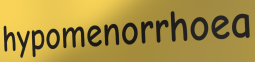
hypomenorrhoea